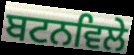
ਬਟਨਵਿਲੇ